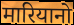
मारियानो